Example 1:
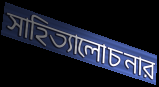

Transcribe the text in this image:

সাহিত্যালোচনার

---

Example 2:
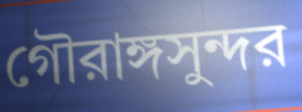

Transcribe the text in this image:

গৌরাঙ্গসুন্দর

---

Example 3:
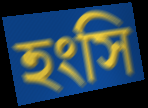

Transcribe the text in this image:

হংসি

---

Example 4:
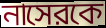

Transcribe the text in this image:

নাসেরকে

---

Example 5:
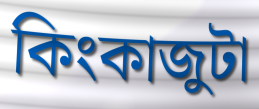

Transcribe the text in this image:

কিংকাজুটা